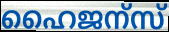
ഹൈജന്സ്